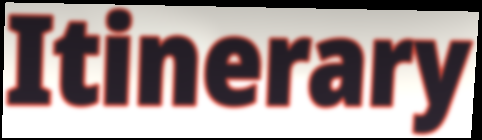
Itinerary